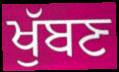
ਖੁੱਬਣ